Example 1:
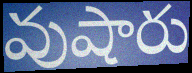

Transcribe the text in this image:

వుషారు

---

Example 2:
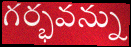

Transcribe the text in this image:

గర్భవన్ను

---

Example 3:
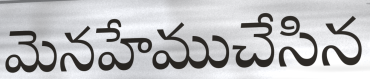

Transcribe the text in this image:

మెనహేముచేసిన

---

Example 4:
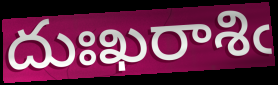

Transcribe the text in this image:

దుఃఖరాశిఁ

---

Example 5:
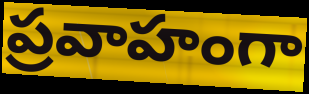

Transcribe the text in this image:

ప్రవాహంగా